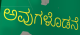
ಅವುಗಳೊಡನೆ